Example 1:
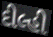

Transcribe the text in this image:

દીલ્હી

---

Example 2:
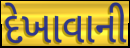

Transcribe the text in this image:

દેખાવાની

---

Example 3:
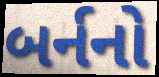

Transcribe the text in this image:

બર્નનો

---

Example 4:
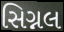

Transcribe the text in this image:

સિગ્નલ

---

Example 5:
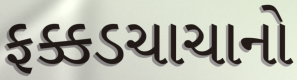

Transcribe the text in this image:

ફક્કડચાચાનો